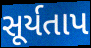
સૂર્યતાપ